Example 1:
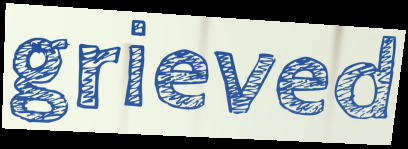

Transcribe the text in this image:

grieved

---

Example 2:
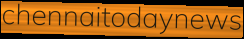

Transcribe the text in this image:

chennaitodaynews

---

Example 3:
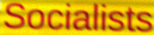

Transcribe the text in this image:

Socialists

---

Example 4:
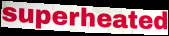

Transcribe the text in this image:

superheated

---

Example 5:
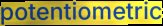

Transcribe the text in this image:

potentiometric